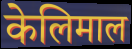
केलिमाल